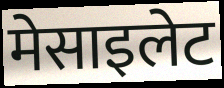
मेसाइलेट